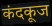
कंदकूज